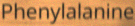
Phenylalanine